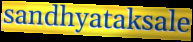
sandhyataksale